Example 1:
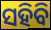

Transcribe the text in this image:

ସହିବି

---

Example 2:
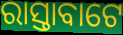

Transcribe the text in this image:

ରାସ୍ତାବାଟେ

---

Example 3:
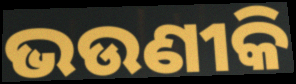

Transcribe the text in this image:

ଭଉଣୀକି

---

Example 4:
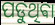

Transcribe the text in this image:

ପଡୁଥିଵା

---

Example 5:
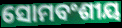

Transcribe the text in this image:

ସୋମବଂଶୀୟ